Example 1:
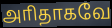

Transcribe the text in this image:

அரிதாகவே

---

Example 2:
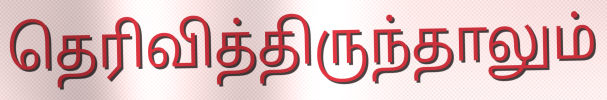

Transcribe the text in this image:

தெரிவித்திருந்தாலும்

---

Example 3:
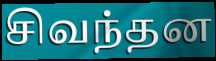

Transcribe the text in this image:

சிவந்தன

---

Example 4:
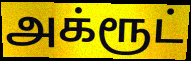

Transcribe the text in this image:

அக்ரூட்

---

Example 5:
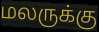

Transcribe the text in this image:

மலருக்கு